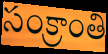
సంక్రాంతి